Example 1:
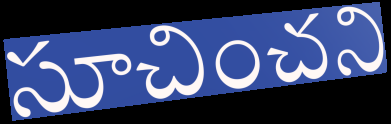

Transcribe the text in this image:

సూచించని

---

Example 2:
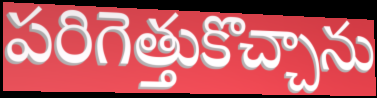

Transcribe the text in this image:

పరిగెత్తుకొచ్చాను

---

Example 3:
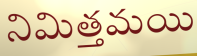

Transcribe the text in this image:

నిమిత్తమయి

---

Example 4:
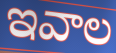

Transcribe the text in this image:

ఇవాల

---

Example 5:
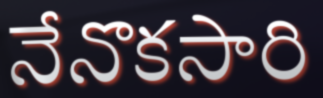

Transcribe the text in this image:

నేనొకసారి